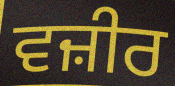
ਵਜ਼ੀਰ